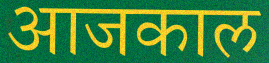
आजकाल